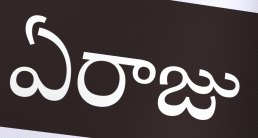
ఏరాజు